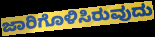
ಜಾರಿಗೊಳಿಸಿರುವುದು